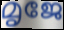
മൃജേ